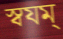
স্বযম্